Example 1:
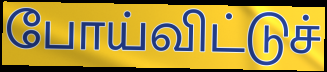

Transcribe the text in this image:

போய்விட்டுச்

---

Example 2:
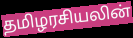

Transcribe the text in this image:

தமிழரசியலின்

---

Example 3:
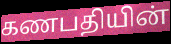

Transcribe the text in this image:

கணபதியின்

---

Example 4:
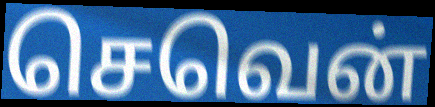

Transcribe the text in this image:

செவென்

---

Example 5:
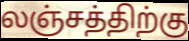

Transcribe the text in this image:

லஞ்சத்திற்கு